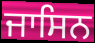
ਜਾਸਿਨ